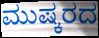
ಮುಷ್ಕರದ